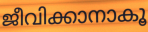
ജീവിക്കാനാകൂ